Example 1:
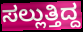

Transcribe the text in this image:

ಸಲ್ಲುತ್ತಿದ್ದ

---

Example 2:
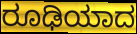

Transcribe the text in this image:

ರೂಢಿಯಾದ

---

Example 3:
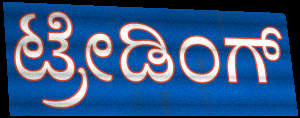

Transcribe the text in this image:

ಟ್ರೇಡಿಂಗ್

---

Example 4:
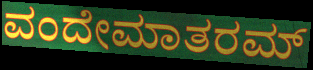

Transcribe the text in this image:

ವಂದೇಮಾತರಮ್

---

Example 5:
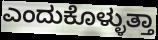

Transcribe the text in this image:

ಎಂದುಕೊಳ್ಳುತ್ತಾ